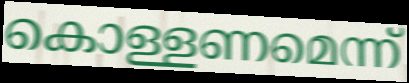
കൊള്ളണമെന്ന്